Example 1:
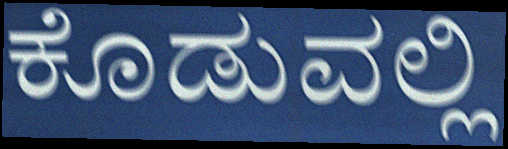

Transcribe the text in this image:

ಕೊಡುವಲ್ಲಿ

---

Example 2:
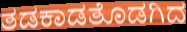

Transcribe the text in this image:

ತಡಕಾಡತೊಡಗಿದ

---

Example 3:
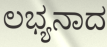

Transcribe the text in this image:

ಲಭ್ಯನಾದ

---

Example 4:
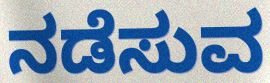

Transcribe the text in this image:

ನಡೆಸುವ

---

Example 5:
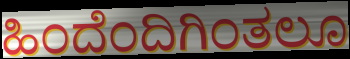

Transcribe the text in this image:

ಹಿಂದೆಂದಿಗಿಂತಲೂ